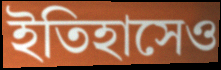
ইতিহাসেও